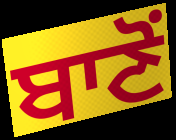
ਬਾਣੋਂ